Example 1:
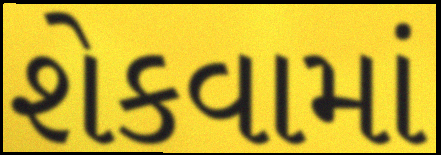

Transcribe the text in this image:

શેકવામાં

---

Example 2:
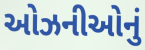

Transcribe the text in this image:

ઓઝનીઓનું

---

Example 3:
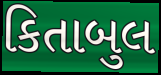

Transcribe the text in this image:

કિતાબુલ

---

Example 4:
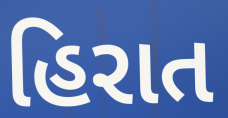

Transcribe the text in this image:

હિરાત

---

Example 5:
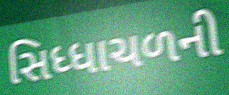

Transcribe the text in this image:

સિધ્ધાચળની